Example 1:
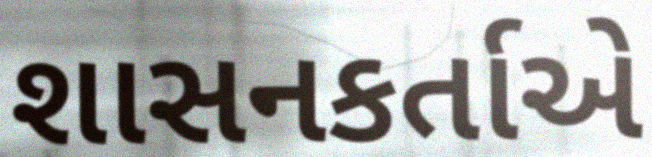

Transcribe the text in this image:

શાસનકર્તાએ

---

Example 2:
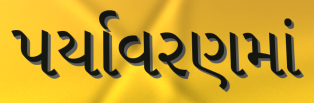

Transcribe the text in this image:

પર્યાવરણમાં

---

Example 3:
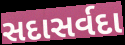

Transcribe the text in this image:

સદાસર્વદા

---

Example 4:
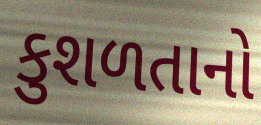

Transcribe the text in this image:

કુશળતાનો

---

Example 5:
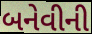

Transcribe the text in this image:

બનેવીની